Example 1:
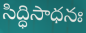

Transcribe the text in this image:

సిద్ధిసాధనః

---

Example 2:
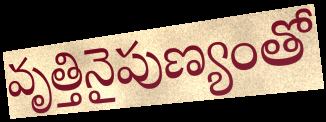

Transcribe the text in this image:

వృత్తినైపుణ్యంతో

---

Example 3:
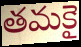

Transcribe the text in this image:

తమకై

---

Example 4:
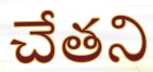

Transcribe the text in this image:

చేతని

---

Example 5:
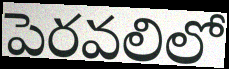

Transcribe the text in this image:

పెరవలిలో